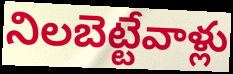
నిలబెట్టేవాళ్లు